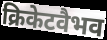
क्रिकेटवैभव